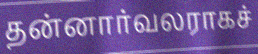
தன்னார்வலராகச்